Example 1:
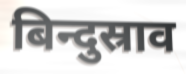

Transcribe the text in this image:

बिन्दुस्राव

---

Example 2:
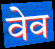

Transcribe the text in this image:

वेव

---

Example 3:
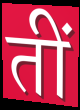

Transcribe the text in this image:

तीं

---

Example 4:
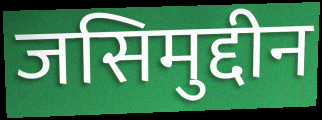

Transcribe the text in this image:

जसिमुद्दीन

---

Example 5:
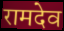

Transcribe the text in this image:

रामदेव